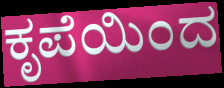
ಕೃಪೆಯಿಂದ